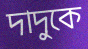
দাদুকে